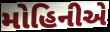
મોહિનીએ